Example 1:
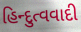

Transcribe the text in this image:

હિન્દુત્વવાદી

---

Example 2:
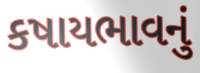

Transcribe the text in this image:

કષાયભાવનું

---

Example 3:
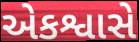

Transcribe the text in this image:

એકશ્વાસે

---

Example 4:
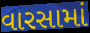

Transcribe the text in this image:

વારસામાં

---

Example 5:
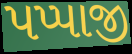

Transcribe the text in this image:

પપ્પાજી